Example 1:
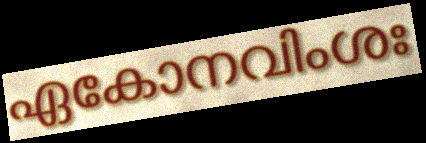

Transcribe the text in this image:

ഏകോനവിംശഃ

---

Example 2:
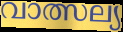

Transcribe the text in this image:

വാത്സല്യ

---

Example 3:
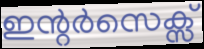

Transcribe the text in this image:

ഇന്റർസെക്സ്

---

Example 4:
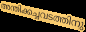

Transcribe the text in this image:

അന്തിക്കച്ചവടത്തിനു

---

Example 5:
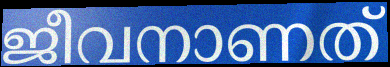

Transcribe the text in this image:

ജീവനാണത്